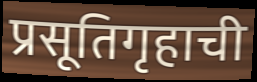
प्रसूतिगृहाची